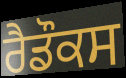
ਰੈਡੌਕਸ